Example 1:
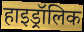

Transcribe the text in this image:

हाइड्रॉलिक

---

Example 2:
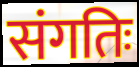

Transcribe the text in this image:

संगतिः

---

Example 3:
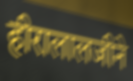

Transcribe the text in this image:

हीरालालजीने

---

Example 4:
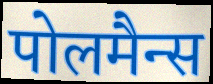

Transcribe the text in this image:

पोलमैन्स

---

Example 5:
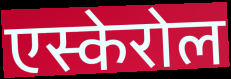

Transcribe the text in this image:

एस्केरोल